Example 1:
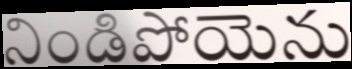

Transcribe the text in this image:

నిండిపోయెను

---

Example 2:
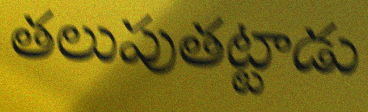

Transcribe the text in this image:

తలుపుతట్టాడు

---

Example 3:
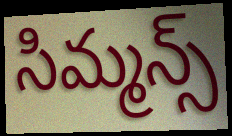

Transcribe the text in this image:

సిమ్మన్స్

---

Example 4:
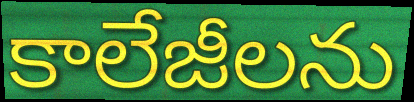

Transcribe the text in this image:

కాలేజీలను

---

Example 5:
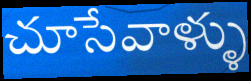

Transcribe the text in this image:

చూసేవాళ్ళు